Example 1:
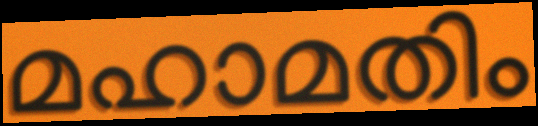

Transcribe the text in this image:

മഹാമതിം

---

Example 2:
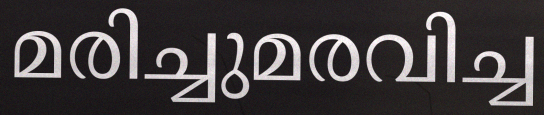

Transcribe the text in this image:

മരിച്ചുമരവിച്ച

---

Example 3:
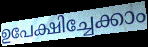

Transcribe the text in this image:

ഉപേക്ഷിച്ചേക്കാം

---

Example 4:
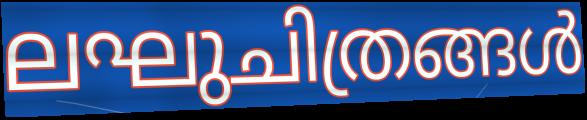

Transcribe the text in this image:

ലഘുചിത്രങ്ങൾ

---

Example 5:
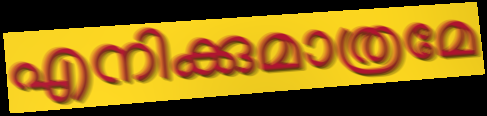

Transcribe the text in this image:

എനിക്കുമാത്രമേ